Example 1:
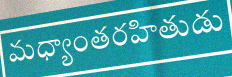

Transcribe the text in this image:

మధ్యాంతరహితుడు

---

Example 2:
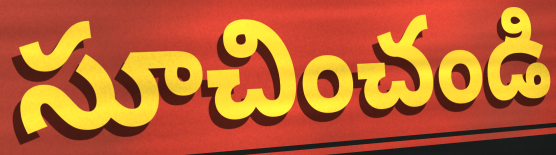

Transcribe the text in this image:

సూచించండి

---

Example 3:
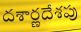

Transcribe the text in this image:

దశార్ణదేశపు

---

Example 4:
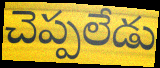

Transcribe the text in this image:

చెప్పలేడు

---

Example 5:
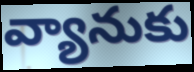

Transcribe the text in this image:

వ్యానుకు